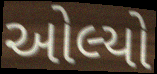
ઓલ્યો